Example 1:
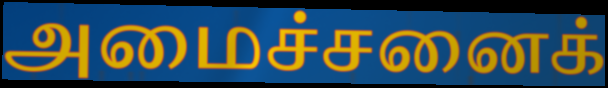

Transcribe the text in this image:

அமைச்சனைக்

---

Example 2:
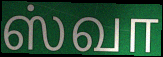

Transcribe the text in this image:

ஸ்வா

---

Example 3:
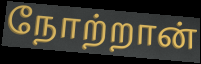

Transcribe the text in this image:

நோற்றான்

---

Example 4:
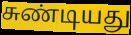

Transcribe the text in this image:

சுண்டியது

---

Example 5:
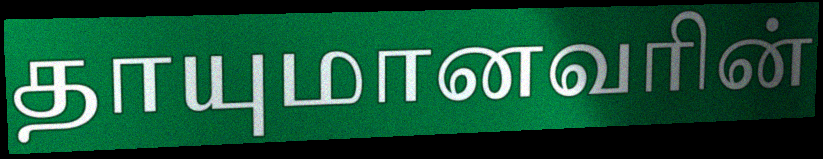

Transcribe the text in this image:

தாயுமானவரின்